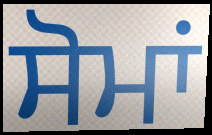
ਸੋਮਾਂ